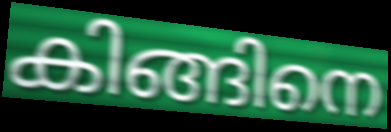
കിങ്ങിനെ